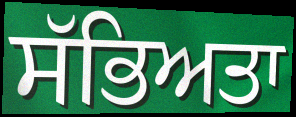
ਸੱਭਿਅਤਾ